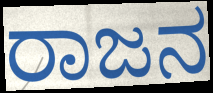
ರಾಜನ